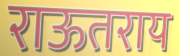
राऊतराय